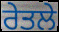
ਰੇਤਲੇ